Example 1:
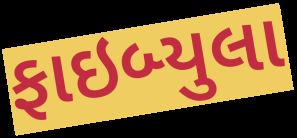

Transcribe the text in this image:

ફાઇબ્યુલા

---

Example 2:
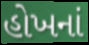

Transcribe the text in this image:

હોખનાં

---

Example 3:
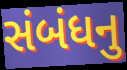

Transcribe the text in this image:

સંબંધનુ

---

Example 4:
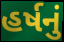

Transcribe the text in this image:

હર્ષનું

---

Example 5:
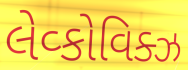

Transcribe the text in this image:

લેવ્કોવિક્ઝ